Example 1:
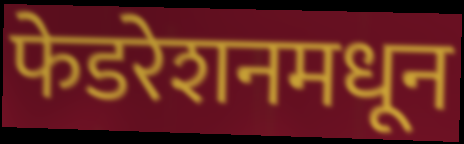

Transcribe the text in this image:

फेडरेशनमधून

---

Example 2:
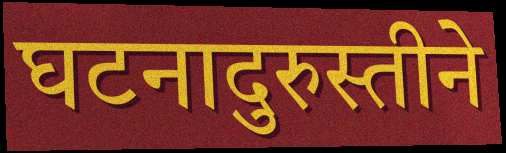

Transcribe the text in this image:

घटनादुरुस्तीने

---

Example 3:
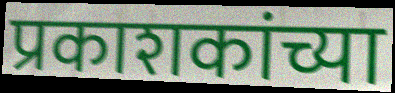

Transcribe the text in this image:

प्रकाशकांच्या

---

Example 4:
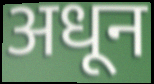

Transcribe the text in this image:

अधून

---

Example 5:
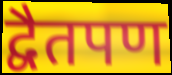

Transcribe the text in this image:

द्वैतपण